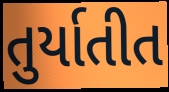
તુર્યાતીત